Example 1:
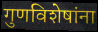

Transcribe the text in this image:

गुणविशेषांना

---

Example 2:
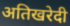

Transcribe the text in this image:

अतिखरेदी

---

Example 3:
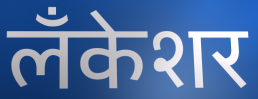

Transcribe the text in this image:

लँकेशर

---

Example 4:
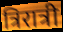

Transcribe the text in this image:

त्रिरात्री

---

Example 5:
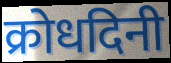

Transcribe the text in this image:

क्रोधदिनी